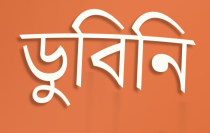
ডুবিনি